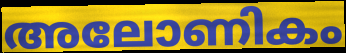
അലോണികം